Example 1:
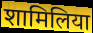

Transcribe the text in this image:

शामिलिया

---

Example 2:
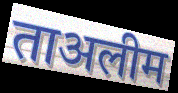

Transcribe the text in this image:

ताअलीम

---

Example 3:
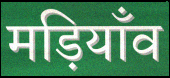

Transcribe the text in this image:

मड़ियाँव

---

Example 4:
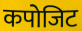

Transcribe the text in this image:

कपोजिट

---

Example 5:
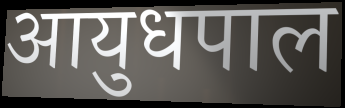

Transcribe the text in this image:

आयुधपाल